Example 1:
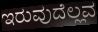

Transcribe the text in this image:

ಇರುವುದೆಲ್ಲವ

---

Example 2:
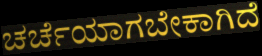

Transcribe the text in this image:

ಚರ್ಚೆಯಾಗಬೇಕಾಗಿದೆ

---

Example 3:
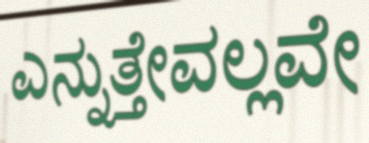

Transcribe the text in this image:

ಎನ್ನುತ್ತೇವಲ್ಲವೇ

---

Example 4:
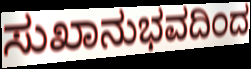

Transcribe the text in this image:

ಸುಖಾನುಭವದಿಂದ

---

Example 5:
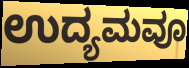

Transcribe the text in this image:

ಉದ್ಯಮವೂ